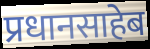
प्रधानसाहेब